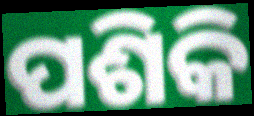
ପଶିକି